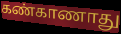
கண்காணாது